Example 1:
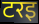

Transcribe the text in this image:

टरइ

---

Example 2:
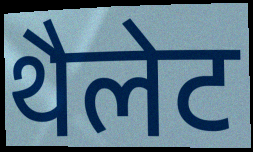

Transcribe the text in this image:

थैलेट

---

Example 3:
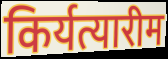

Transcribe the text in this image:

किर्यत्यारीम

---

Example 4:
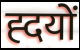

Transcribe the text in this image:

ह्दयों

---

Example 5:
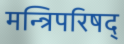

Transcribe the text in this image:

मन्त्रिपरिषद्